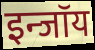
इन्जॉय